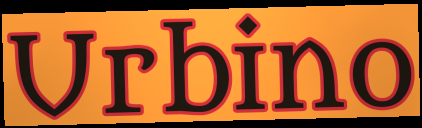
Urbino